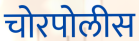
चोरपोलीस